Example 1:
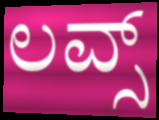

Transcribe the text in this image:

ಲವ್ಸ್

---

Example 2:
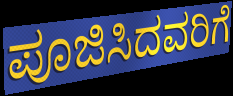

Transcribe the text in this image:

ಪೂಜಿಸಿದವರಿಗೆ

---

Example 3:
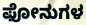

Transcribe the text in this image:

ಫೋನುಗಳ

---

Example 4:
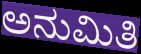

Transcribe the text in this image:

ಅನುಮಿತಿ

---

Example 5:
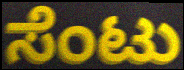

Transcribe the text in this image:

ಸೆಂಟು